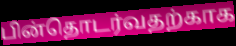
பின்தொடர்வதற்காக